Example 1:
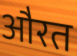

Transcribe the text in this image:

औरत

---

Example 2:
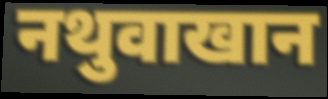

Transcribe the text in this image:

नथुवाखान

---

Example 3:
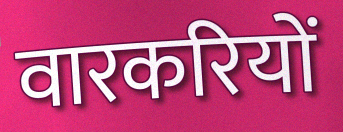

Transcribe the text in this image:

वारकरियों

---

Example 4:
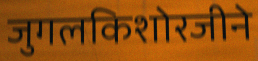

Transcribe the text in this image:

जुगलकिशोरजीने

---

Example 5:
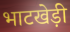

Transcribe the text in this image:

भाटखेड़ी